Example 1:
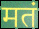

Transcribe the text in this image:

मतं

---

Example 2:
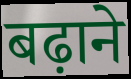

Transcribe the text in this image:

बढ़ाने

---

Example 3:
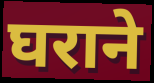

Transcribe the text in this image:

घराने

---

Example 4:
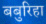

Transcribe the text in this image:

बबुरिहा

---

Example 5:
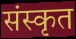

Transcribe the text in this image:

संस्कृत